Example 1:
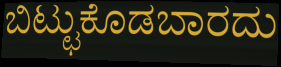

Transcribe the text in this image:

ಬಿಟ್ಟುಕೊಡಬಾರದು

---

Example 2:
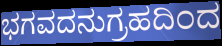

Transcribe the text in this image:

ಭಗವದನುಗ್ರಹದಿಂದ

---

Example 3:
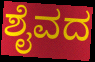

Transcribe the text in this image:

ಶೈವದ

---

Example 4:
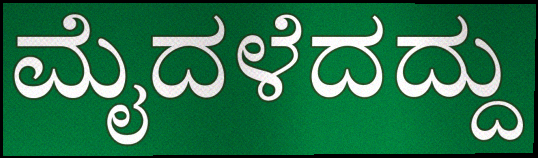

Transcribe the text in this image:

ಮೈದಳೆದದ್ದು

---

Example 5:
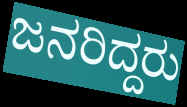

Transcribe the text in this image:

ಜನರಿದ್ದರು